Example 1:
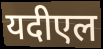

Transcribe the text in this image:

यदीएल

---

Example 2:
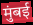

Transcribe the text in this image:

मुंबई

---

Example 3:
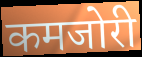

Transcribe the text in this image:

कमजोरी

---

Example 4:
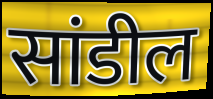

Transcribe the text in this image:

सांडील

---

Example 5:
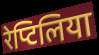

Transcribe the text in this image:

रेप्टिलिया